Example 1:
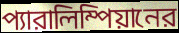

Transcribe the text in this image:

প্যারালিম্পিয়ানের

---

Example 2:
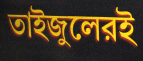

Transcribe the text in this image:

তাইজুলেরই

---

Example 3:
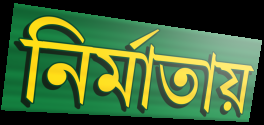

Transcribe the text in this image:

নির্মাতায়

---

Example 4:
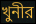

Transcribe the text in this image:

খুনীর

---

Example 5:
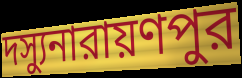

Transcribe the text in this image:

দস্যুনারায়ণপুর